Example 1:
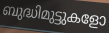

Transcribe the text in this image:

ബുദ്ധിമുട്ടുകളോ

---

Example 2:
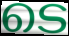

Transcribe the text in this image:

ടെ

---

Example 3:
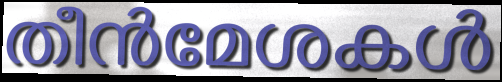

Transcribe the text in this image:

തീൻമേശകൾ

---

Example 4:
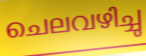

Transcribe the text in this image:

ചെലവഴിച്ചു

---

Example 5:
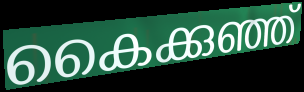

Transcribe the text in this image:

കൈക്കുഞ്ഞ്